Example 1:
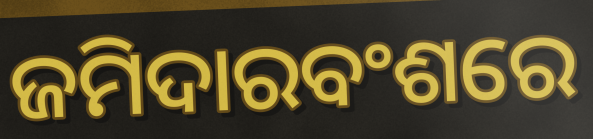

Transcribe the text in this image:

ଜମିଦାରବଂଶରେ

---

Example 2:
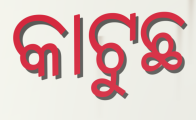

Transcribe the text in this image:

କାଟୁଛ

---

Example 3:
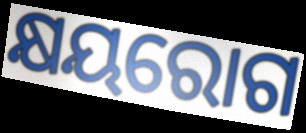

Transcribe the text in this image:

କ୍ଷୟରୋଗ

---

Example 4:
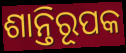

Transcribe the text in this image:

ଶାନ୍ତିରୂପକ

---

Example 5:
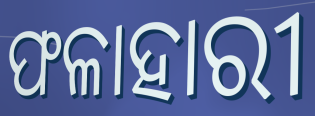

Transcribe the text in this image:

ଫଳାହାରୀ